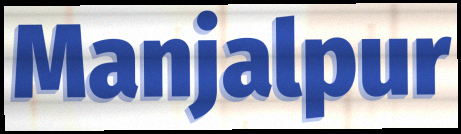
Manjalpur